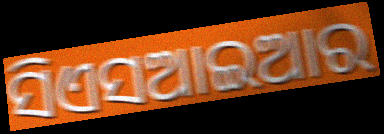
ସିଏସଆଇଆର